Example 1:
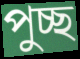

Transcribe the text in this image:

পুচ্ছ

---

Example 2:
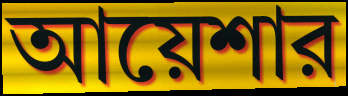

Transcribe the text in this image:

আয়েশার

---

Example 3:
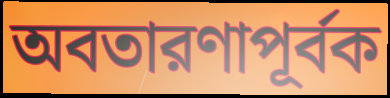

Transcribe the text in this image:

অবতারণাপূর্বক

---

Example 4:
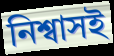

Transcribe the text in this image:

নিশ্বাসই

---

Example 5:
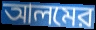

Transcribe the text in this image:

আলমের